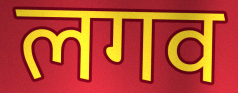
लगव